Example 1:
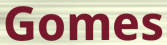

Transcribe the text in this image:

Gomes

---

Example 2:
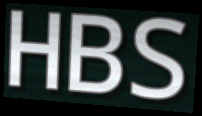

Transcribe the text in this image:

HBS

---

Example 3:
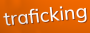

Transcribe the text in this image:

traficking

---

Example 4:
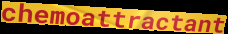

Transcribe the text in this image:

chemoattractant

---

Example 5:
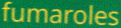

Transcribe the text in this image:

fumaroles